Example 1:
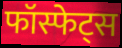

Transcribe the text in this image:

फॉस्फेट्स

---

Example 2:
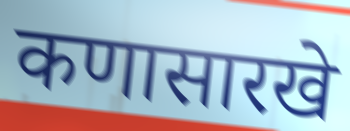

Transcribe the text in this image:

कणासारखे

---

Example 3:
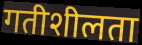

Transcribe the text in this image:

गतीशीलता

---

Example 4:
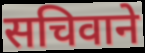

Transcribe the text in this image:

सचिवाने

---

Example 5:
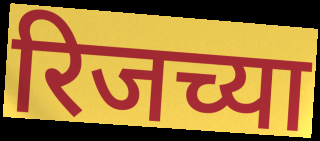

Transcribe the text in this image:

रिजच्या